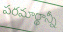
పరమార్థాన్నీ